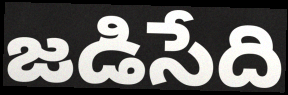
జడిసేది